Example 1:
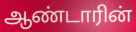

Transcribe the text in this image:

ஆண்டாரின்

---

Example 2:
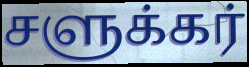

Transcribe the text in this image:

சளுக்கர்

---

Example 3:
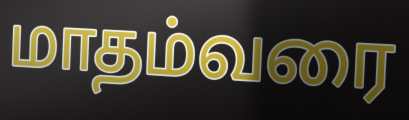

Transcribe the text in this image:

மாதம்வரை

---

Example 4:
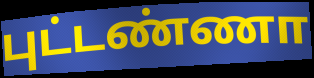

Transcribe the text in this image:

புட்டண்ணா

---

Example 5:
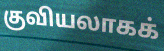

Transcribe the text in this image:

குவியலாகக்